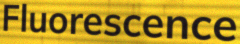
Fluorescence